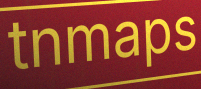
tnmaps